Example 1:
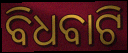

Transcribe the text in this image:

ବିଧବାଟି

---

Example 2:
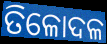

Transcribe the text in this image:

ତିଳୋଦଳ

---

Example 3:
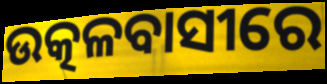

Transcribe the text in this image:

ଉତ୍କଳବାସୀରେ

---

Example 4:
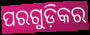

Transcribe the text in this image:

ପରଗୁଡ଼ିକର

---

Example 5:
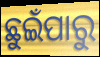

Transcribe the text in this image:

ଛୁଇଁପାରୁ